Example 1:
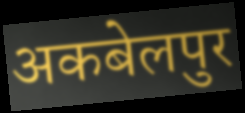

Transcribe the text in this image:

अकबेलपुर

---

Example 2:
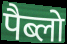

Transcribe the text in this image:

पैब्लो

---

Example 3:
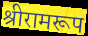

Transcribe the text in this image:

श्रीरामरूप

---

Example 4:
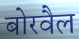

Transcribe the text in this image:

बोरवैल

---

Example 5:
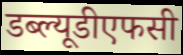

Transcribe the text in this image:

डब्ल्यूडीएफसी